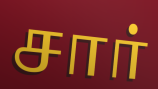
சார்